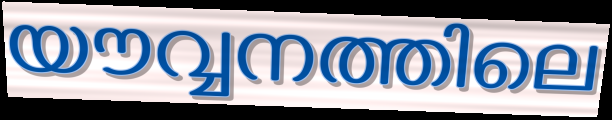
യൗവ്വനത്തിലെ